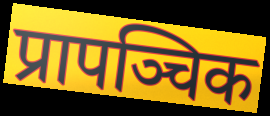
प्रापञ्चिक